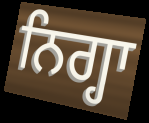
ਨਿਗ੍ਹਾ